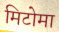
मिटोमा